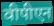
वीपीएन